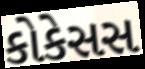
કોકેસસ